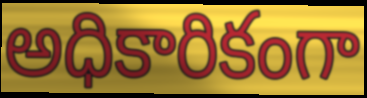
అధికారికంగా